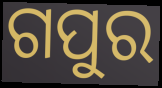
ଗପୁର